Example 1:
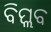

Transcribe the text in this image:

ବିପ୍ଲବ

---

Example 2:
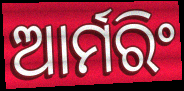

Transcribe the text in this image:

ଆର୍ମରିଂ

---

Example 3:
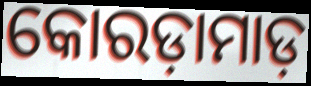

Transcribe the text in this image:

କୋରଡ଼ାମାଡ଼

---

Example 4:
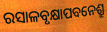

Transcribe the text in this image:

ରସାଳବୃକ୍ଷାପବନେଶ୍ରୁ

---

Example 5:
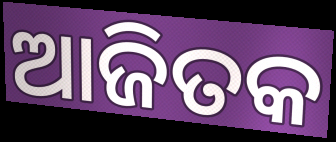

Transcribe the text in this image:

ଆଜିତକ